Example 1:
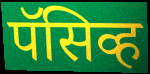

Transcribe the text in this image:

पॅसिव्ह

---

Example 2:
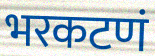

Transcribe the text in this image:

भरकटणं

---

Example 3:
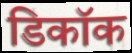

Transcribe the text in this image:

डिकॉक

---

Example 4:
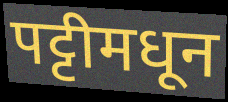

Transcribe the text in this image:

पट्टीमधून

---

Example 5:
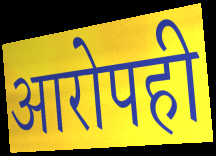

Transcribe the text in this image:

आरोपही